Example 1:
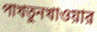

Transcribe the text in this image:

পাখতুনখাওয়ার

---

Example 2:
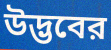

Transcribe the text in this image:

উদ্ভবের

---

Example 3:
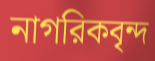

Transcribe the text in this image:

নাগরিকবৃন্দ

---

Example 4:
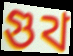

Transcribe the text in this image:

গুথ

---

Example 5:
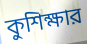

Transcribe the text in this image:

কুশিক্ষার